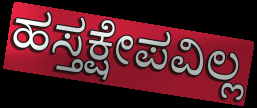
ಹಸ್ತಕ್ಷೇಪವಿಲ್ಲ